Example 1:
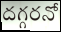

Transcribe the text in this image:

దగ్గరనో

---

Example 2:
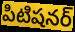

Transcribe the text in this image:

పిటిషనర్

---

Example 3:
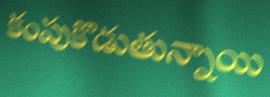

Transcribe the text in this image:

కంపుకొడుతున్నాయి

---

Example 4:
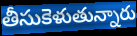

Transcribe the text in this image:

తీసుకెళుతున్నారు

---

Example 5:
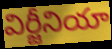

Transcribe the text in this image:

విర్జీనియా